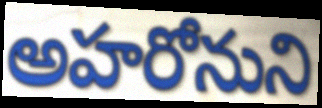
అహరోనుని